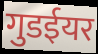
गुडईयर